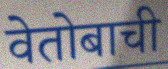
वेतोबाची